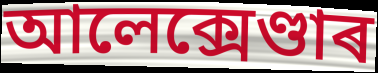
আলেক্সেণ্ডাৰ